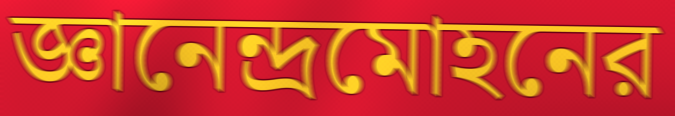
জ্ঞানেন্দ্রমোহনের